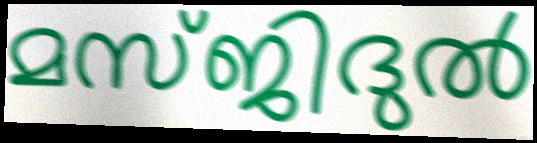
മസ്ജിദുൽ